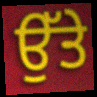
ਉੱਤੇ